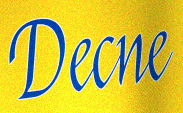
Decne